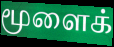
மூளைக்